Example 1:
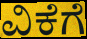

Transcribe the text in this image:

ವಿಕೆಗೆ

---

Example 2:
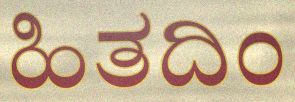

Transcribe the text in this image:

ಹಿತದಿಂ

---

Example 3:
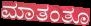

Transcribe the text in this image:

ಮಾತಂತೂ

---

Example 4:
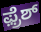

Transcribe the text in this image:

ಫ಼್ರೆಶ್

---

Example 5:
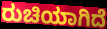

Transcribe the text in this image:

ರುಚಿಯಾಗಿದೆ